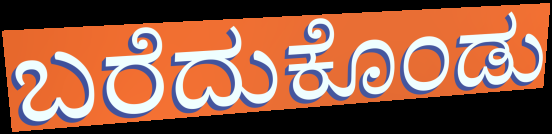
ಬರೆದುಕೊಂಡು